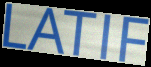
LATIF